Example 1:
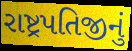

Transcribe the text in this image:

રાષ્ટ્રપતિજીનું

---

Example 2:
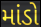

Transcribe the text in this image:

માંડો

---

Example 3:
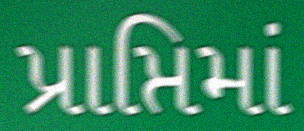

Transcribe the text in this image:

પ્રાપ્તિમાં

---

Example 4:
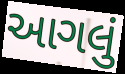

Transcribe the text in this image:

આગલું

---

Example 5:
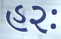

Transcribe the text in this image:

હરઃ